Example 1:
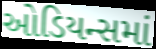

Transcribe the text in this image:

ઓડિયન્સમાં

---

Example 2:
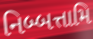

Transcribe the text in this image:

નિબ્બત્તામિ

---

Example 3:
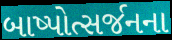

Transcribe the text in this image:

બાષ્પોત્સર્જનના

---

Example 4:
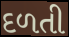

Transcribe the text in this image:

દળતી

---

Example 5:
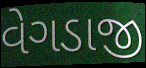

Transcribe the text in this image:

વેગડાજી